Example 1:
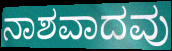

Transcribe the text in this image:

ನಾಶವಾದವು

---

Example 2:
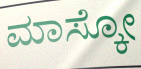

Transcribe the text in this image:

ಮಾಸ್ಕೋ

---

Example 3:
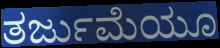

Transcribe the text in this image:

ತರ್ಜುಮೆಯೂ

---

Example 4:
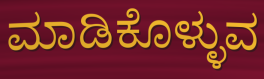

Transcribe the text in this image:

ಮಾಡಿಕೊಳ್ಳುವ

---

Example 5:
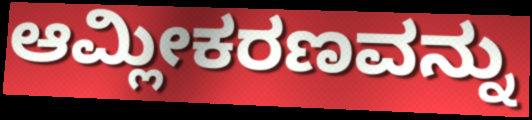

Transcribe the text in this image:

ಆಮ್ಲೀಕರಣವನ್ನು